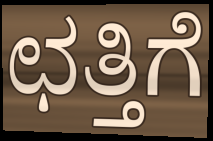
ಛತ್ತಿಗೆ